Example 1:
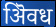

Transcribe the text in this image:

ऄिवध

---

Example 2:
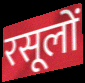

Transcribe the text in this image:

रसूलों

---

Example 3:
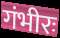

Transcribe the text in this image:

गंभीरः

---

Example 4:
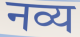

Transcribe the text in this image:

नव्य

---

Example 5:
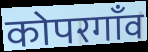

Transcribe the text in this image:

कोपरगाँव